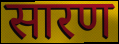
सारण